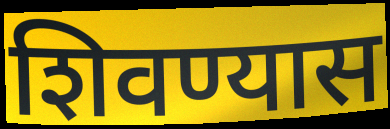
शिवण्यास